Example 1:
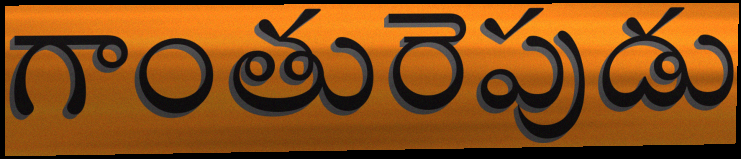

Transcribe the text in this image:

గాంతురెపుడు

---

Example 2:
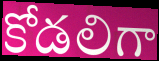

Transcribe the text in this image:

కోడలిగా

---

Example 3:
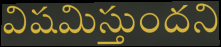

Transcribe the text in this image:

విషమిస్తుందని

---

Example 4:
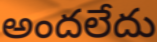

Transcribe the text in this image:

అందలేదు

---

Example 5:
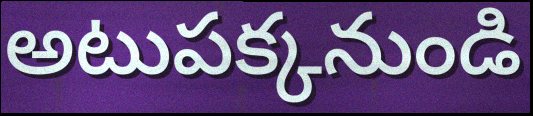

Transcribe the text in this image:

అటుపక్కనుండి